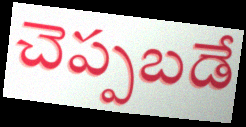
చెప్పబడే